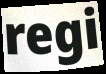
regi